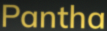
Pantha